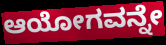
ಆಯೋಗವನ್ನೇ